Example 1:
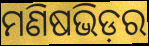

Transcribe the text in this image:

ମଣିଷଭିଡ଼ର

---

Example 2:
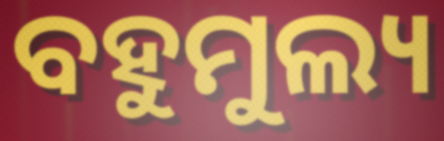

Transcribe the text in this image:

ବହୁମୁଲ୍ୟ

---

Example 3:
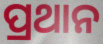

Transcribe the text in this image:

ପ୍ରଥାନ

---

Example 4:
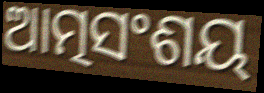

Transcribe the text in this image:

ଆତ୍ମସଂଶୟ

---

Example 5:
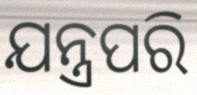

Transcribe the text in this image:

ଯନ୍ତ୍ରପରି